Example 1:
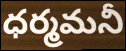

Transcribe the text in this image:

ధర్మమనీ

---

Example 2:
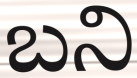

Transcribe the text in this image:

బని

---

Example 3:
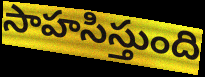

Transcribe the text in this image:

సాహసిస్తుంది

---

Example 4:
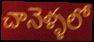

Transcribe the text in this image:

చానెళ్ళలో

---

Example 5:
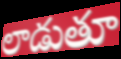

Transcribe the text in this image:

లాడుతూ